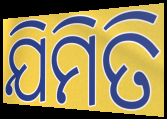
ଯିମିତି